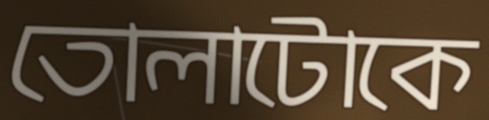
তোলাটোকে